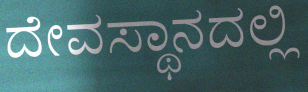
ದೇವಸ್ಥಾನದಲ್ಲಿ